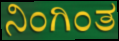
ನಿಂಗಿಂತ